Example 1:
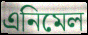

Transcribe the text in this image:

এনিমেল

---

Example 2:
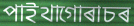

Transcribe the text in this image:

পাইথাগোৰাচৰ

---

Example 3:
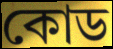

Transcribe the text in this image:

কোড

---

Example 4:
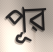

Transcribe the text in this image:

পূৱ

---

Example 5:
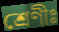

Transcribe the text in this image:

শ্ৰেণীঃ